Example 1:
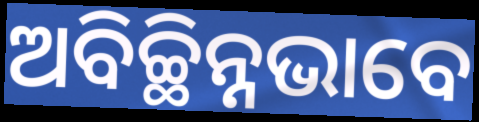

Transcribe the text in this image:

ଅବିଚ୍ଛିନ୍ନଭାବେ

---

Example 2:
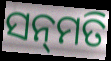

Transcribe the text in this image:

ସନ୍‌ମତି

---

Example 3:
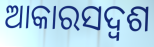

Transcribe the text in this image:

ଆକାରସଦ୍ୱଶ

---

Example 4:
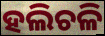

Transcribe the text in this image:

ହଲିଚଳି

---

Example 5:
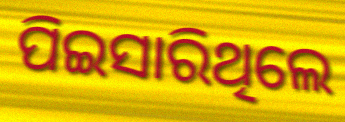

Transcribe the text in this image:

ପିଇସାରିଥିଲେ